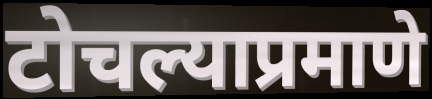
टोचल्याप्रमाणे